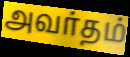
அவர்தம்